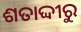
ଶତାଦ୍ଦୀରୁ